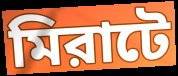
মিরাটে